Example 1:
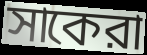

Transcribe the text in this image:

সাকেরা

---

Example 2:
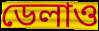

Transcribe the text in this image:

ডেলাও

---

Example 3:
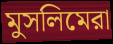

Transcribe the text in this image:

মুসলিমেরা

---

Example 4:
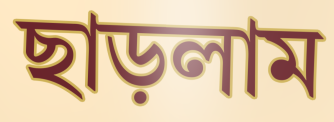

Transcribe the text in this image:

ছাড়লাম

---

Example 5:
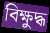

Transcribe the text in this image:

বিক্ষুদ্ধ